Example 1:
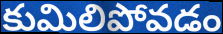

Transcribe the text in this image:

కుమిలిపోవడం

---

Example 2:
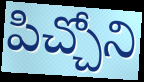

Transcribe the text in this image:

పిచ్చోని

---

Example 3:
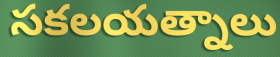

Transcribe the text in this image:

సకలయత్నాలు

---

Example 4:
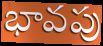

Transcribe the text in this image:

భావపు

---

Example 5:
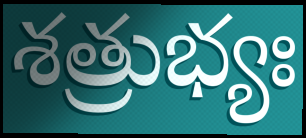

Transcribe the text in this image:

శత్రుభ్యః